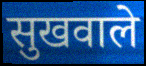
सुखवाले